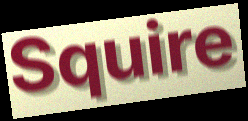
Squire